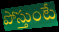
పోస్తుంటే